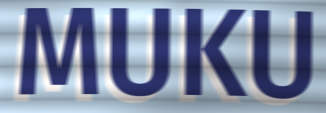
MUKU